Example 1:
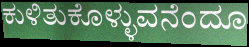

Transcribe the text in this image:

ಕುಳಿತುಕೊಳ್ಳುವನೆಂದೂ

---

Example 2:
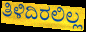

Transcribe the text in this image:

ತಿಳಿದಿರಲಿಲ್ಲ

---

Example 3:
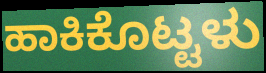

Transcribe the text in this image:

ಹಾಕಿಕೊಟ್ಟಳು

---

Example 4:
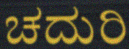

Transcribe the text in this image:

ಚದುರಿ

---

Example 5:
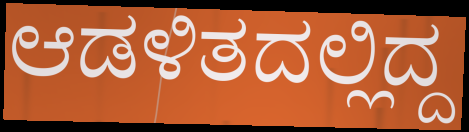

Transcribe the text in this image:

ಆಡಳಿತದಲ್ಲಿದ್ದ